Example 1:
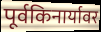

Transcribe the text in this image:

पूर्वकिनार्यावर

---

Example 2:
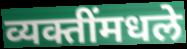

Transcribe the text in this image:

व्यक्तींमधले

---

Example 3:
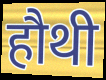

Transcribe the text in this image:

हौथी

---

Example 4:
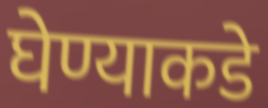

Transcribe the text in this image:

घेण्याकडे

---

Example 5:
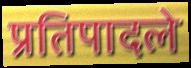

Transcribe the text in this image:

प्रतिपादले